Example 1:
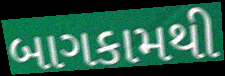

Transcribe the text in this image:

બાગકામથી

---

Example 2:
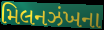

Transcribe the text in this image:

મિલનઝંખના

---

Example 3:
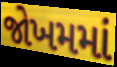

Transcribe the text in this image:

જોખમમાં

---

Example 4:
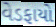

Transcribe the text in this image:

વેડફાયો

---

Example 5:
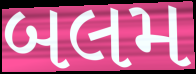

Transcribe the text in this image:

બલમ